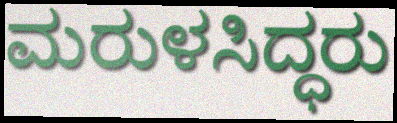
ಮರುಳಸಿದ್ಧರು